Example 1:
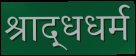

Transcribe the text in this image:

श्राद्धधर्म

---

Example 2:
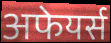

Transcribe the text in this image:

अफेयर्स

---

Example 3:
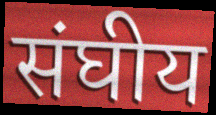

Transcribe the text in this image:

संघीय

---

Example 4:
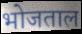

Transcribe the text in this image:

भोजताल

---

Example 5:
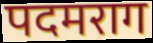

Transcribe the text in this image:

पदमराग